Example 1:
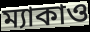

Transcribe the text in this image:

ম্যাকাও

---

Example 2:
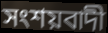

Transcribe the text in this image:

সংশয়বাদী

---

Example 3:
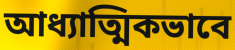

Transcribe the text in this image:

আধ্যাত্মিকভাবে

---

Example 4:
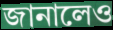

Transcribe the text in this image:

জানালেও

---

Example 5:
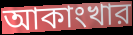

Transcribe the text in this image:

আকাংখার